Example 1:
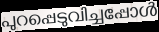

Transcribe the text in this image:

പുറപ്പെടുവിച്ചപ്പോൾ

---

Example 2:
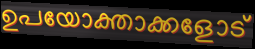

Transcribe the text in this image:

ഉപയോക്താക്കളോട്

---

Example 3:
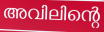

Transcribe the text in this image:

അവിലിന്റെ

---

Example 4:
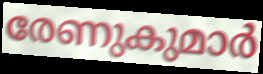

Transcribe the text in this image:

രേണുകുമാർ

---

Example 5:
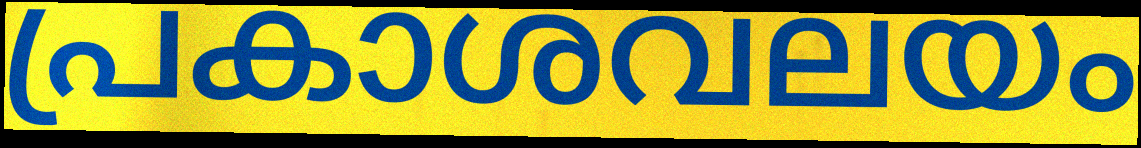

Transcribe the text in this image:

പ്രകാശവലയം